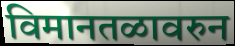
विमानतळावरुन